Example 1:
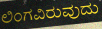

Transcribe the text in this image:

ಲಿಂಗವಿರುವುದು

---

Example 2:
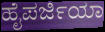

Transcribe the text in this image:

ಹೈಪರ್ಜಿಯಾ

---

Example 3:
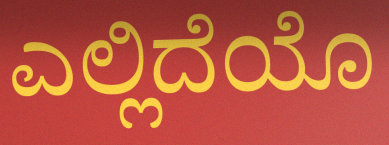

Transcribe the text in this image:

ಎಲ್ಲಿದೆಯೊ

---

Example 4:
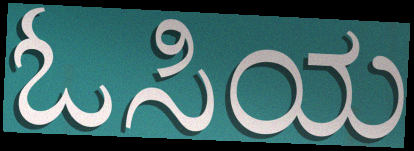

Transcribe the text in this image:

ಓಸಿಯ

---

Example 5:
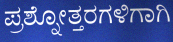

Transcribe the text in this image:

ಪ್ರಶ್ನೋತ್ತರಗಳಿಗಾಗಿ